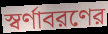
স্বর্ণাবরণের